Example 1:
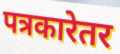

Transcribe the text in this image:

पत्रकारेतर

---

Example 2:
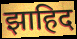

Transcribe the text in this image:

झाहिद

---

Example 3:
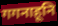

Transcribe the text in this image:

गगनाहूनि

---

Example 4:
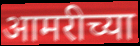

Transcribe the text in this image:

आमरीच्या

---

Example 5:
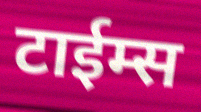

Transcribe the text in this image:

टाईम्स